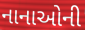
નાનાઓની